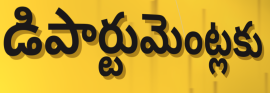
డిపార్టుమెంట్లకు